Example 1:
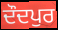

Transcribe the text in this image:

ਦੌਦਪੁਰ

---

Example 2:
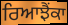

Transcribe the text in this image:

ਰਿਆਝੈਂਕਾ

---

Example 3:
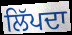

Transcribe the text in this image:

ਲਿੱਪਦਾ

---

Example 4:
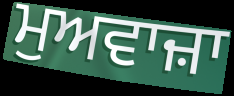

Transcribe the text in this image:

ਮੁਅਵਾਜ਼ਾ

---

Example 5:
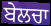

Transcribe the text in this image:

ਬੇਲਚਾ